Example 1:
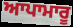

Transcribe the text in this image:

ਆਪਾਮਾਰੂ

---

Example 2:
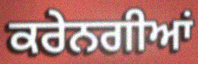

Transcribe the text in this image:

ਕਰੇਨਗੀਆਂ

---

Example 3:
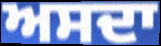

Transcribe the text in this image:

ਅਸਦਾ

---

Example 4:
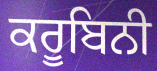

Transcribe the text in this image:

ਕਰੂਬਿਨੀ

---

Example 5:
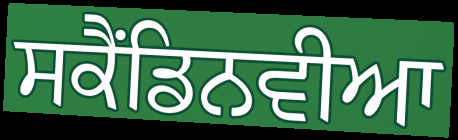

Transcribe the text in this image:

ਸਕੈਂਡਿਨਵੀਆ